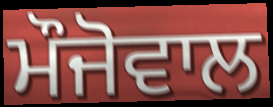
ਮੌਜੋਵਾਲ